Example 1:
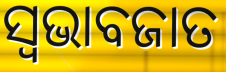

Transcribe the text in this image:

ସ୍ୱଭାବଜାତ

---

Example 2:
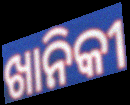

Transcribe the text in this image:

ଖାନିକୀ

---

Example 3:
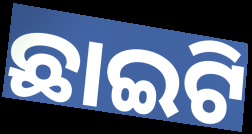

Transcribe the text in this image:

ଛାଇଟି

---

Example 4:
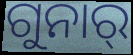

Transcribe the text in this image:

ଗୁନାର୍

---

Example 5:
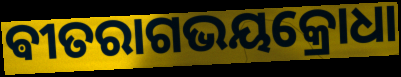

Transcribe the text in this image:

ଵୀତରାଗଭୟକ୍ରୋଧା